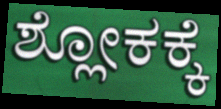
ಶ್ಲೋಕಕ್ಕೆ